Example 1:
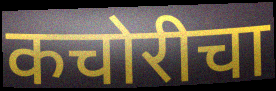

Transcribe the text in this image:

कचोरीचा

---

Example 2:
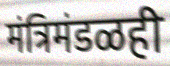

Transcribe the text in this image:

मंत्रिमंडळही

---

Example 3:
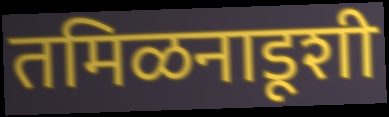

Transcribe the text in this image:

तमिळनाडूशी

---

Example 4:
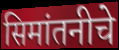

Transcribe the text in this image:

सिमांतनीचे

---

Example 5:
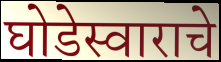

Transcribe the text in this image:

घोडेस्वाराचे